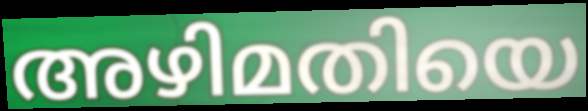
അഴിമതിയെ